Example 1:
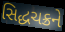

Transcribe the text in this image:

સિદ્ધચક્રને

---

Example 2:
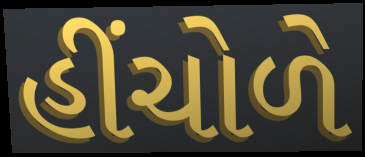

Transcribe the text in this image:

હીંચોળે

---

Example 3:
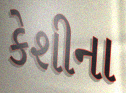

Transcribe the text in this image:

કેશીના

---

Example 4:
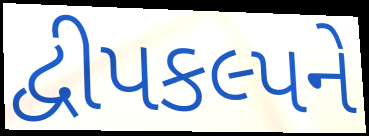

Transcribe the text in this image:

દ્વીપકલ્પને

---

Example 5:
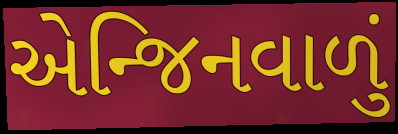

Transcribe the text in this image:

એન્જિનવાળું